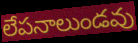
లేపనాలుండవు